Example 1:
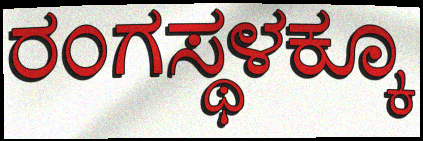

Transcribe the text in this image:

ರಂಗಸ್ಥಳಕ್ಕೂ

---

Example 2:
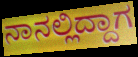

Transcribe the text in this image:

ನಾನಲ್ಲಿದ್ದಾಗ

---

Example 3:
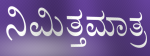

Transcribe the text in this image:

ನಿಮಿತ್ತಮಾತ್ರ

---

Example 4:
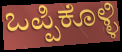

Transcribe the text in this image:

ಒಪ್ಪಿಕೊಳ್ಳಿ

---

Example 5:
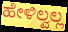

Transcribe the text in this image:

ಹೇಳಿಲ್ವಲ್ಲ